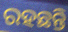
ରହଛନ୍ତି